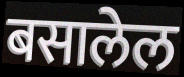
बसालेल